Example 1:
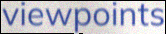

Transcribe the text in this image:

viewpoints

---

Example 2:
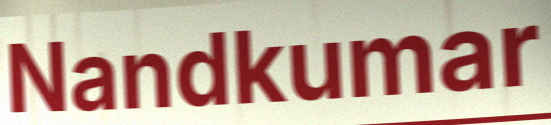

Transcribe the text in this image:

Nandkumar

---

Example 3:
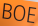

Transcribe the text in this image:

BOE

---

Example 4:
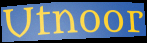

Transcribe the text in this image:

Utnoor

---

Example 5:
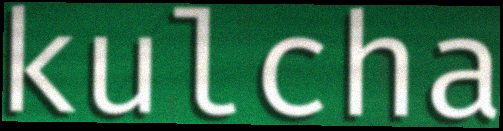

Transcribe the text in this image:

kulcha